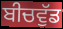
ਬੀਚਵੁੱਡ